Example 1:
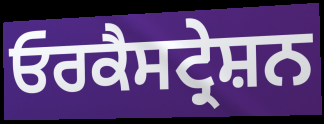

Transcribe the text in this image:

ਓਰਕੈਸਟ੍ਰੇਸ਼ਨ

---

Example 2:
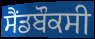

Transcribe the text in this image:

ਸੈਂਡਬੌਕਸੀ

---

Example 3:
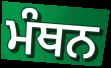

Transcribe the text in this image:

ਮੰਥਨ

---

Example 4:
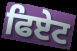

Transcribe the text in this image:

ਫਿਏਟ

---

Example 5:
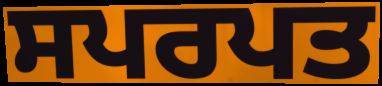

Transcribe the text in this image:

ਸਪਰਪਤ